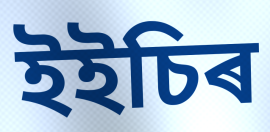
ইইচিৰ